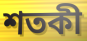
শতকী